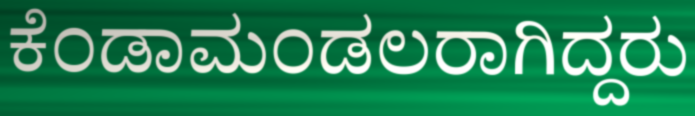
ಕೆಂಡಾಮಂಡಲರಾಗಿದ್ದರು